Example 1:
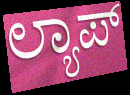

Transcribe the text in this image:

ಲ್ಯಾಪ್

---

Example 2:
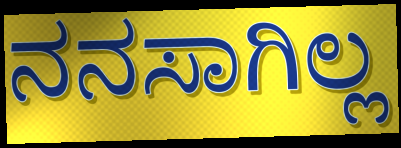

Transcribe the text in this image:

ನನಸಾಗಿಲ್ಲ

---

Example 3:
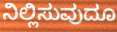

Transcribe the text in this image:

ನಿಲ್ಲಿಸುವುದೂ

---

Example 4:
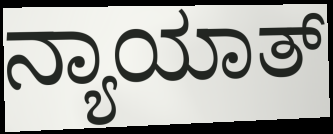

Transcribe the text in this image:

ನ್ಯಾಯಾತ್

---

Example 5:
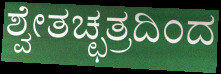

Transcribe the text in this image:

ಶ್ವೇತಚ್ಛತ್ರದಿಂದ